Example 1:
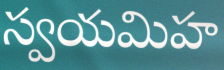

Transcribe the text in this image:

స్వయమిహ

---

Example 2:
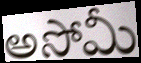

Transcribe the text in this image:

అసోమీ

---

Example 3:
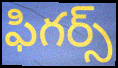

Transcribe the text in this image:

ఫిగర్స్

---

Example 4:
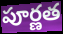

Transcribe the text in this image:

పూర్ణత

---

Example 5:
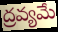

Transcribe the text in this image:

ద్రవ్యమే